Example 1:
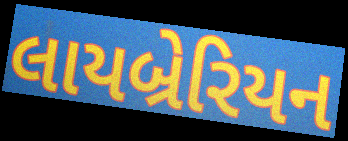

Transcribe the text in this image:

લાયબ્રેરિયન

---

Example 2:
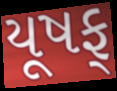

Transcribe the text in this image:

યૂષફ્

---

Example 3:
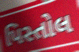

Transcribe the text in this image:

પિસ્તોલ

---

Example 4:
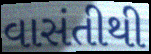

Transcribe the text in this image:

વાસંતીથી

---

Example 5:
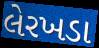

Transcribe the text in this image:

લેરખડા